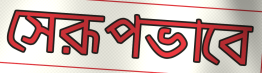
সেরূপভাবে